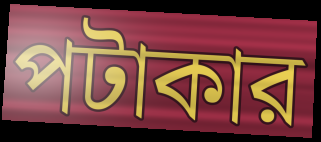
পটাকার